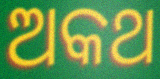
ଅକଥ